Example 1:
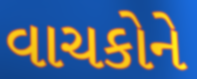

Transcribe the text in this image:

વાચકોને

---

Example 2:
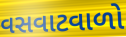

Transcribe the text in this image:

વસવાટવાળો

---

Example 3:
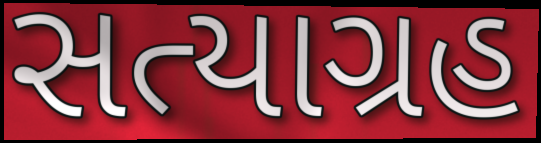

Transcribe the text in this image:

સત્યાગ્રહ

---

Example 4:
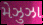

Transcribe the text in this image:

મેઝુઝા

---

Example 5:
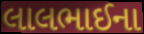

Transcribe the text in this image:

લાલભાઈના